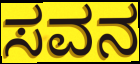
ಸವನ